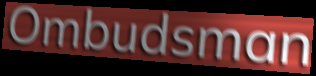
Ombudsman